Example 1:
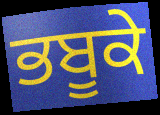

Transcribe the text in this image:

ਭਬੂਕੇ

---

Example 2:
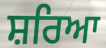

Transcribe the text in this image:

ਸ਼ਰਿਆ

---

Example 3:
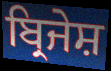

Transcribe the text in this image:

ਬ੍ਰਿਜੇਸ਼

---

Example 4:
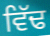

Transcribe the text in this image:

ਵਿੱਢ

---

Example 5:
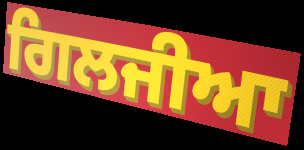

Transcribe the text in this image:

ਗਿਲਜੀਆ